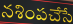
నశింపచేసే